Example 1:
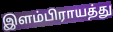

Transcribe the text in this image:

இளம்பிராயத்து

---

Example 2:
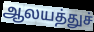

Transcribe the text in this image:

ஆலயத்துச்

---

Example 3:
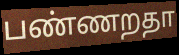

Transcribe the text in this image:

பண்ணறதா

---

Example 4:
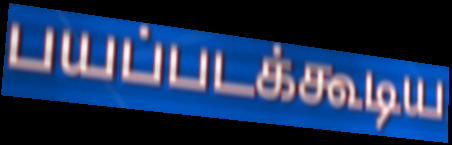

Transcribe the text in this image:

பயப்படக்கூடிய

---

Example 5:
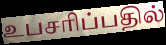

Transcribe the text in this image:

உபசரிப்பதில்